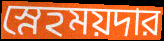
স্নেহময়দার